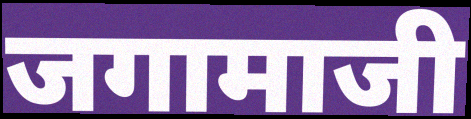
जगामाजी